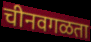
चीनवगळता